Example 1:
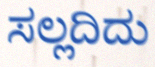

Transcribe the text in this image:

ಸಲ್ಲದಿದು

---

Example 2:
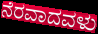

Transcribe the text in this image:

ನೆರವಾದವಳು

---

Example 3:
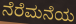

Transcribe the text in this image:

ನೆರೆಮನೆಯ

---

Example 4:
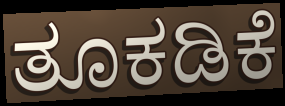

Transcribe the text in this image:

ತೂಕಡಿಕೆ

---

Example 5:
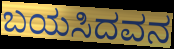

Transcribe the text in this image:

ಬಯಸಿದವನ